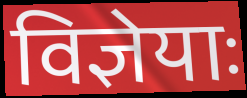
विज्ञेयाः